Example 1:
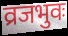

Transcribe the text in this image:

व्रजभुवः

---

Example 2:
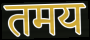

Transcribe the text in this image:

तमय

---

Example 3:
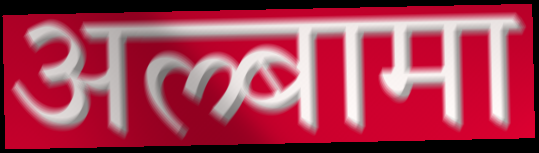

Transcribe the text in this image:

अल्बामा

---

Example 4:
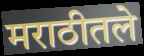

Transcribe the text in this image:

मराठीतले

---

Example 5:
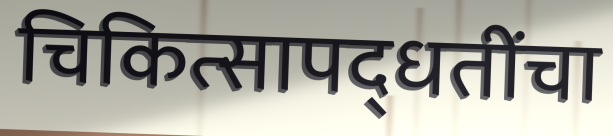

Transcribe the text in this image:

चिकित्सापद्धतींचा